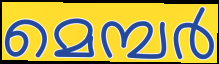
മെമ്പർ